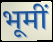
भूमीं